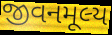
જીવનમૂલ્ય